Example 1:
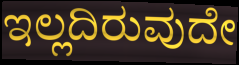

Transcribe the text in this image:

ಇಲ್ಲದಿರುವುದೇ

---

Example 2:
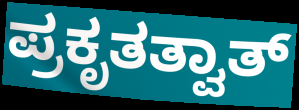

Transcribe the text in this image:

ಪ್ರಕೃತತ್ವಾತ್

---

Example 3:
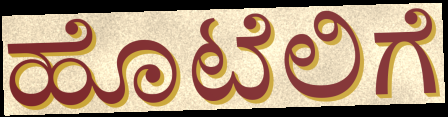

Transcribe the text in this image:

ಹೊಟೆಲಿಗೆ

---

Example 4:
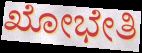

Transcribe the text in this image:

ಖೋಭೇತಿ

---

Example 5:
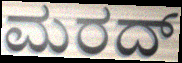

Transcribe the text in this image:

ಮರದ್